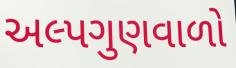
અલ્પગુણવાળો